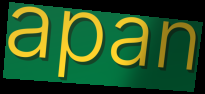
apan